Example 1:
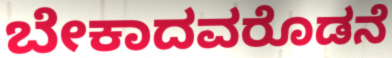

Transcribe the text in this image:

ಬೇಕಾದವರೊಡನೆ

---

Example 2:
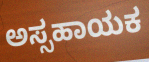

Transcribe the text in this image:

ಅಸ್ಸಹಾಯಕ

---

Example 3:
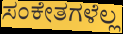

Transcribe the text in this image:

ಸಂಕೇತಗಳೆಲ್ಲ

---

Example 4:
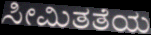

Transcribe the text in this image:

ಸೀಮಿತತೆಯ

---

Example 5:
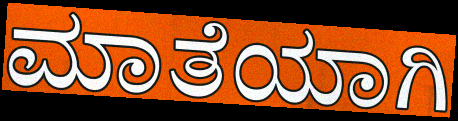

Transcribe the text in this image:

ಮಾತೆಯಾಗಿ